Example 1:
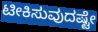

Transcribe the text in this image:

ಟೀಕಿಸುವುದಷ್ಟೇ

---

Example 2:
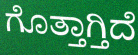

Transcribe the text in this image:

ಗೊತ್ತಾಗ್ತಿದೆ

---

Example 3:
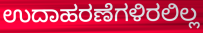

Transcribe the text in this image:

ಉದಾಹರಣೆಗಳಿರಲಿಲ್ಲ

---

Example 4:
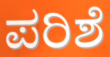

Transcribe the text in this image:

ಪರಿಶೆ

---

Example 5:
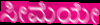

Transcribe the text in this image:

ಸೀಮೆಯೇ